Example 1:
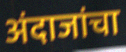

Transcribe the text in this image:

अंदाजांचा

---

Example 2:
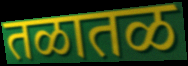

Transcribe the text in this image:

तळातळ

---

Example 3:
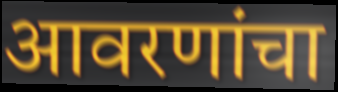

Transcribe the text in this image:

आवरणांचा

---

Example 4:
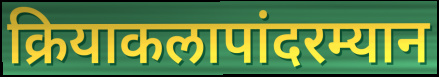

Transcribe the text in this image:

क्रियाकलापांदरम्यान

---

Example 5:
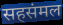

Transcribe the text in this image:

सहसंमल